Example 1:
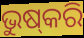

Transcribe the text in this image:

ଭୁଷ୍‌କରି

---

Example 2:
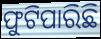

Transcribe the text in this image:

ଫୁଟିପାରିଛି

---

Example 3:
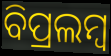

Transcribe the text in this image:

ବିପ୍ରଲମ୍ବ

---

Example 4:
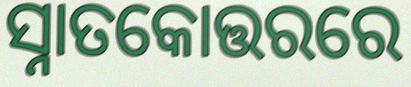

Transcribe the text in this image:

ସ୍ନାତକୋତ୍ତରରେ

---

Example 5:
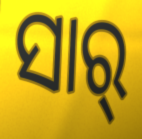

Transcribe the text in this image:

ସାର୍